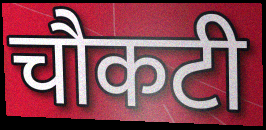
चौकटी